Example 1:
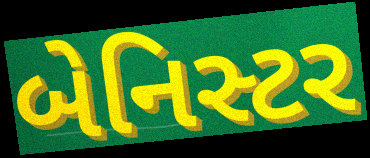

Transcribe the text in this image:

બેનિસ્ટર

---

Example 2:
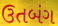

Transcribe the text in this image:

ઉતબંગ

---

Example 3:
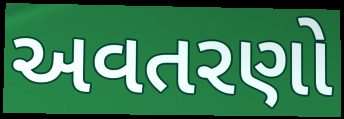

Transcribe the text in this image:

અવતરણો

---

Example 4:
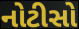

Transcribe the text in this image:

નોટીસો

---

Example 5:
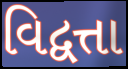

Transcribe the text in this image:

વિદ્વત્તા